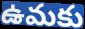
ఉమకు